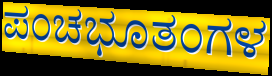
ಪಂಚಭೂತಂಗಳ